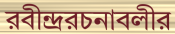
রবীন্দ্ররচনাবলীর